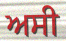
ਅਸੀ